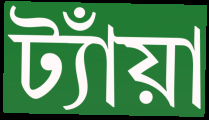
ট্যাঁয়া